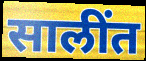
सालींत